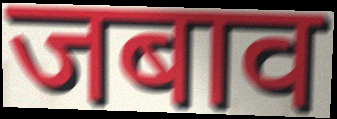
जबाव